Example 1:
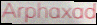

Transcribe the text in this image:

Arphaxad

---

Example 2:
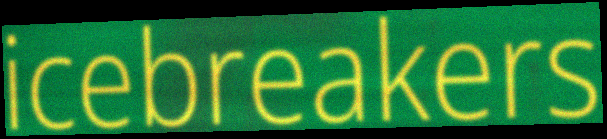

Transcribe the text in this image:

icebreakers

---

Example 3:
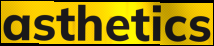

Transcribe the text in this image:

asthetics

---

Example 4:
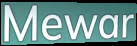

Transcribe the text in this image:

Mewar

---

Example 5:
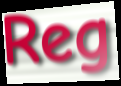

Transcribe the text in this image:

Reg